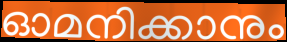
ഓമനിക്കാനും